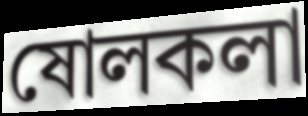
ষোলকলা